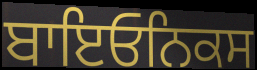
ਬਾਇਓਨਿਕਸ